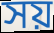
সয়